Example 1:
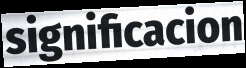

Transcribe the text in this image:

significacion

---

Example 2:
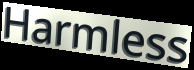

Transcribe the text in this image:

Harmless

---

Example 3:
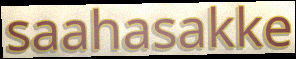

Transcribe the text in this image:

saahasakke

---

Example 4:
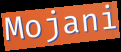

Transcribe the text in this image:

Mojani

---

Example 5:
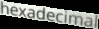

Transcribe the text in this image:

hexadecimal